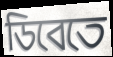
ডিবেতে